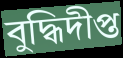
বুদ্ধিদীপ্ত